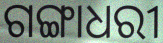
ଗଙ୍ଗାଧରୀ